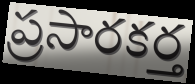
ప్రసారకర్త